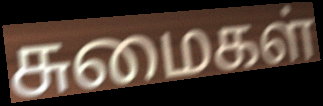
சுமைகள்